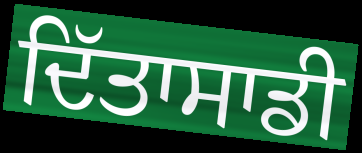
ਦਿੱਤਾਸਾਡੀ